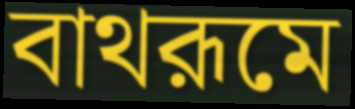
বাথরূমে